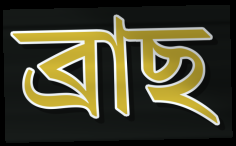
ব্ৰাছ